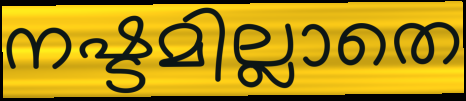
നഷ്ടമില്ലാതെ